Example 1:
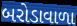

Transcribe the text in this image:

બરોડાવાળા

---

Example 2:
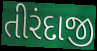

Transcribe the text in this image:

તીરંદાજી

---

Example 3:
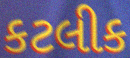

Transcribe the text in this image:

કટલીક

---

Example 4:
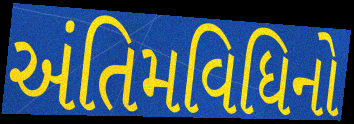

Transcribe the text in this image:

અંતિમવિધિનો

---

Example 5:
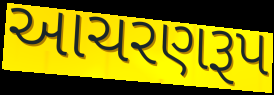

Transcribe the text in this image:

આચરણરૂપ